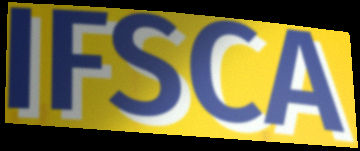
IFSCA